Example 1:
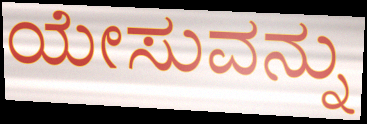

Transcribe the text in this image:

ಯೇಸುವನ್ನು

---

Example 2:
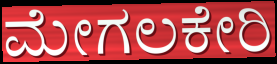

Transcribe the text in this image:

ಮೇಗಲಕೇರಿ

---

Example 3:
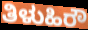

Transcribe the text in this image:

ತಿಳುಹಿರೌ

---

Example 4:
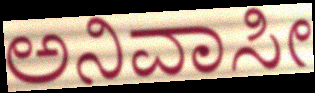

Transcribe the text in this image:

ಅನಿವಾಸೀ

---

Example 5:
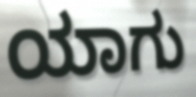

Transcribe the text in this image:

ಯಾಗು